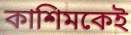
কাশিমকেই